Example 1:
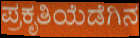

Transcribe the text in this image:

ಪ್ರಕೃತಿಯೆಡೆಗಿನ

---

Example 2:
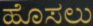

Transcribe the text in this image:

ಹೊಸಲು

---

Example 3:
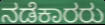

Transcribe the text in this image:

ನಡೆಕಾರರು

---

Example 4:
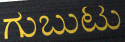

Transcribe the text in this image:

ಗುಬುಟು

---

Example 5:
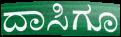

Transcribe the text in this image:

ದಾಸಿಗೂ